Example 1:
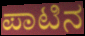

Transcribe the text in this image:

ಪಾಟಿನ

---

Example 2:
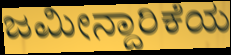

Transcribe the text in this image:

ಜಮೀನ್ದಾರಿಕೆಯ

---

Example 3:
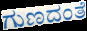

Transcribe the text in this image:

ಗುಣದಂತೆ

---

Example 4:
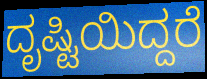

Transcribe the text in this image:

ದೃಷ್ಟಿಯಿದ್ದರೆ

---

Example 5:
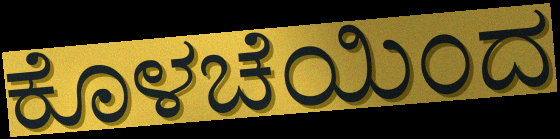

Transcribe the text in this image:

ಕೊಳಚೆಯಿಂದ